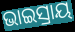
ଭାଇସ୍ରାୟ